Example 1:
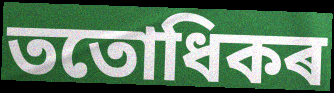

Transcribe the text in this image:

ততোধিকৰ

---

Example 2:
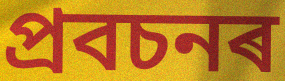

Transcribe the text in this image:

প্ৰবচনৰ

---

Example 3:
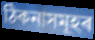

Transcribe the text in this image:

ঠিকনাসমূহৰ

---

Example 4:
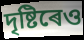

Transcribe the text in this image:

দৃষ্টিৰেও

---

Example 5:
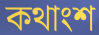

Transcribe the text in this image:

কথাংশ